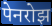
पेनरोझ